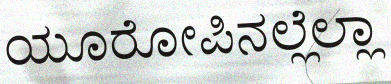
ಯೂರೋಪಿನಲ್ಲೆಲ್ಲಾ